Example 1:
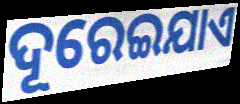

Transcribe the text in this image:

ଦୂରେଇଯାଏ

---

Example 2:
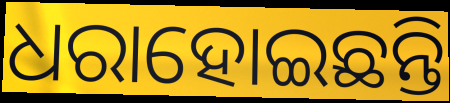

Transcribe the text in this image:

ଧରାହୋଇଛନ୍ତି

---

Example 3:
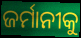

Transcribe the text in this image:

ଜର୍ମାନୀକୁ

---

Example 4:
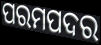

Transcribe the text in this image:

ପରମପଦର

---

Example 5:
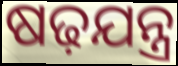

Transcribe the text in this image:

ଷଢ଼ଯନ୍ତ୍ର